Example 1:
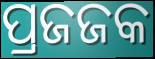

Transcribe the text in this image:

ପ୍ରଜଜକ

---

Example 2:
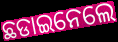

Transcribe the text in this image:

ଛଡାଇନେଲେ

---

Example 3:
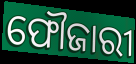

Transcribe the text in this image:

ଫୌଜାରୀ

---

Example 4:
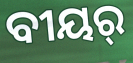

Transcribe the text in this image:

ବୀୟର୍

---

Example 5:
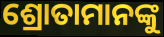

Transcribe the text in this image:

ଶ୍ରୋତାମାନଙ୍କୁ